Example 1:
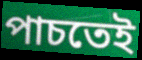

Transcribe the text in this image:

পাচতেই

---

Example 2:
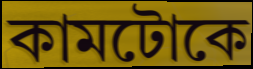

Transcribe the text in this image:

কামটোকে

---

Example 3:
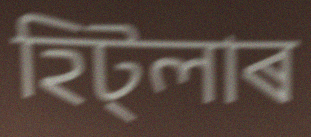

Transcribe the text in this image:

হিট্‌লাৰ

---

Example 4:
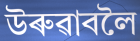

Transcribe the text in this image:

উৰুৱাবলৈ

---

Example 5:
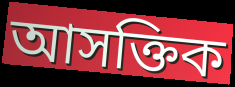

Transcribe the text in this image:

আসক্তিক